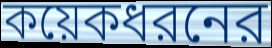
কয়েকধরনের